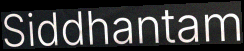
Siddhantam